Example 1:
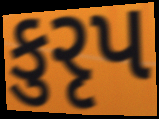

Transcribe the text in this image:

કુરૃપ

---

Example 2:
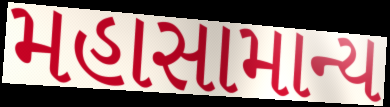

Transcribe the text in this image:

મહાસામાન્ય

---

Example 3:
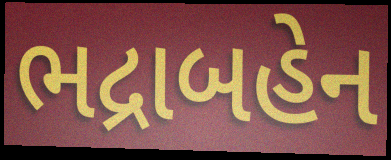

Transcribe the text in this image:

ભદ્રાબહેન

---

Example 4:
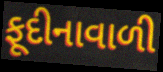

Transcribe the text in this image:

ફૂદીનાવાળી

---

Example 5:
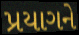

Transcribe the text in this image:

પ્રયાગને